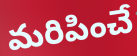
మరిపించే